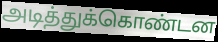
அடித்துக்கொண்டன